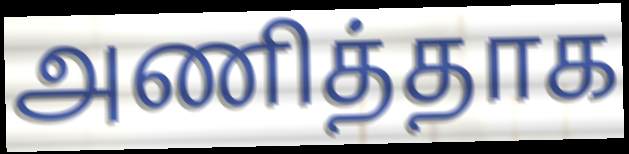
அணித்தாக